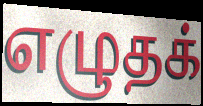
எழுதக்